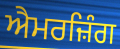
ਐਮਰਜ਼ਿੰਗ